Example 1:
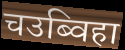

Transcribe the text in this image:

चउब्विहा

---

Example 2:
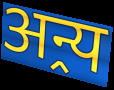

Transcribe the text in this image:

अ्रन्य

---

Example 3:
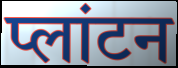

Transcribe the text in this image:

प्लांटन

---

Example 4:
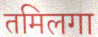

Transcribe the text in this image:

तमिलगा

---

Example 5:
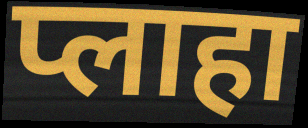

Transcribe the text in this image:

प्लाहा